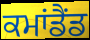
ਕਮਾਂਡੈਂਡ